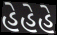
હેહેહે